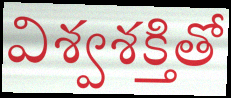
విశ్వశక్తితో